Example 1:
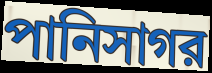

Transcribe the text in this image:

পানিসাগর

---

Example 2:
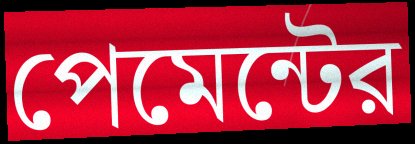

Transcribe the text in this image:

পেমেন্টের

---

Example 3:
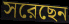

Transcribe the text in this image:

সরেছেন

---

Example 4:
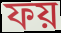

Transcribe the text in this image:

ফয়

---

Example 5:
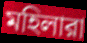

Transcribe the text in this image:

মহিলারা